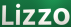
Lizzo